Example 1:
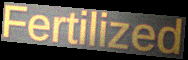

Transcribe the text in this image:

Fertilized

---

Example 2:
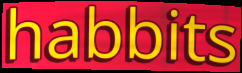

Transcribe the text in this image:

habbits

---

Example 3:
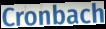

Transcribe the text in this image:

Cronbach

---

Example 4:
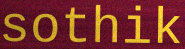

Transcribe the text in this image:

sothik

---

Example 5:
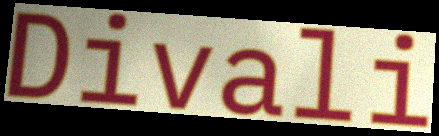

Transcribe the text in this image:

Divali